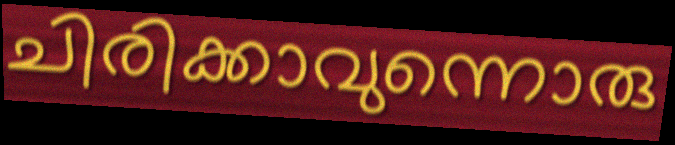
ചിരിക്കാവുന്നൊരു